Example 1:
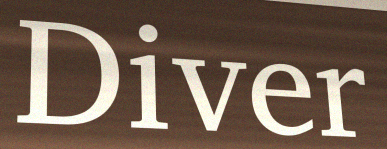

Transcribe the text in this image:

Diver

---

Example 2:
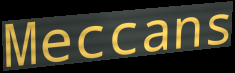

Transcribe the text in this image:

Meccans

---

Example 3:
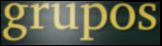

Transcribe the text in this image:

grupos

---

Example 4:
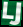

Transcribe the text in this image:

LJ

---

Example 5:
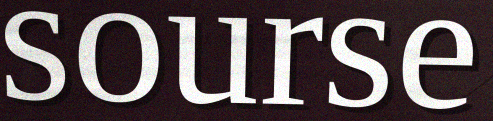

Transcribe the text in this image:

sourse